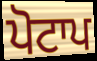
ਪੋਟਾਪ